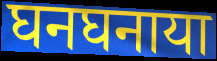
घनघनाया